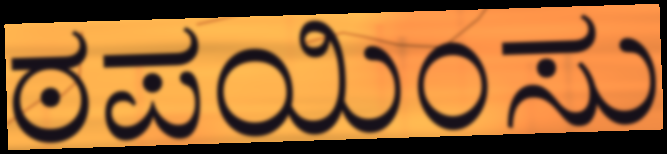
ಠಪಯಿಂಸು